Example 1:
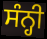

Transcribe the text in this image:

ਸੰਨ੍ਹ੍ਹੀ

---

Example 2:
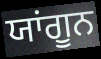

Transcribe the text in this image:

ਯਾਂਗੂਨ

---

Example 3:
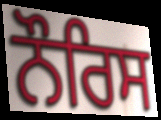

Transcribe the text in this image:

ਨੌਰਿਸ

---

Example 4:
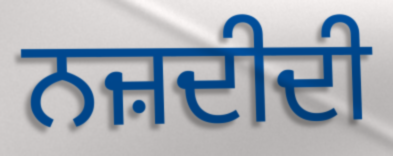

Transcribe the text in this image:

ਨਜ਼ਦੀਦੀ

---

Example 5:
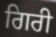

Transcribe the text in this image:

ਗਿਰੀ